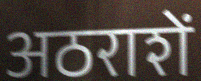
अठराशें